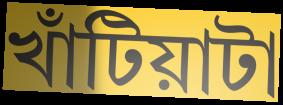
খাঁটিয়াটা